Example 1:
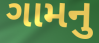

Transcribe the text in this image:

ગામનુ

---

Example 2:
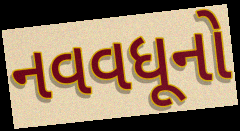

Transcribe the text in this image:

નવવધૂનો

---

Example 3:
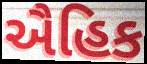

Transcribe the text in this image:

ઐહિક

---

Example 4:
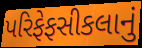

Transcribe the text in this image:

પરિફેફસીકલાનું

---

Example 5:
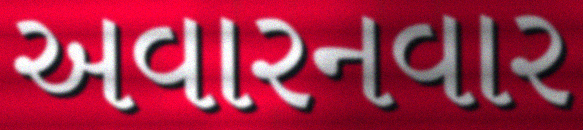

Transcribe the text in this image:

અવારનવાર